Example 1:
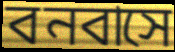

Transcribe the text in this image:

বনবাসে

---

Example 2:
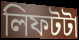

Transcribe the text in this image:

লিফটটা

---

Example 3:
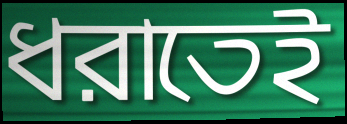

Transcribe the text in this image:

ধরাতেই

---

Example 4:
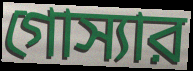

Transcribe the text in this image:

গোস্যার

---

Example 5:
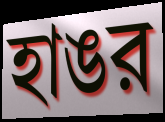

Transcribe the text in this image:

হাঙর